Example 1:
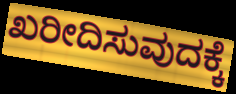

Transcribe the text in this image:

ಖರೀದಿಸುವುದಕ್ಕೆ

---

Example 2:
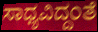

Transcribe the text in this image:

ಸಾಧ್ಯವಿದ್ದಂತೆ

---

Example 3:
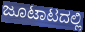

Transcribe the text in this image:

ಜೂಟಾಟದಲ್ಲಿ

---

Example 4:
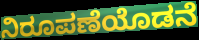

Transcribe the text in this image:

ನಿರೂಪಣೆಯೊಡನೆ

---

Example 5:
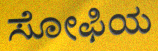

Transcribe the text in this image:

ಸೋಫಿಯ